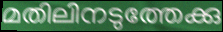
മതിലിനടുത്തേക്കു